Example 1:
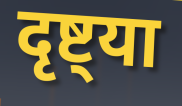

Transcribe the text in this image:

दृष्ट्या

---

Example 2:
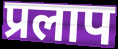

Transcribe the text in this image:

प्रलाप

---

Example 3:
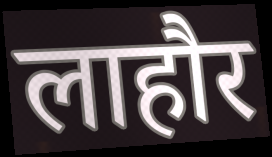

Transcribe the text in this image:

लाहौर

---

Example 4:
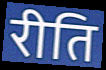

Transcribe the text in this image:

रीति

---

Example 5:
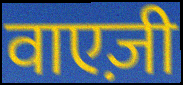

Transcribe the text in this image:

वाएज़ी